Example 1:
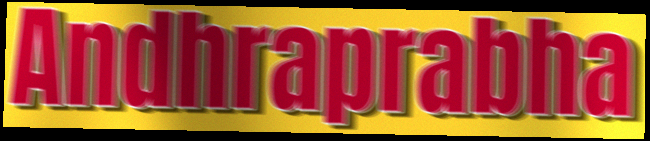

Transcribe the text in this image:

Andhraprabha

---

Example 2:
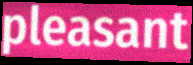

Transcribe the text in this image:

pleasant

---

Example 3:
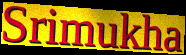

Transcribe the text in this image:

Srimukha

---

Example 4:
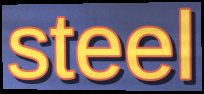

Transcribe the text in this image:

steel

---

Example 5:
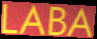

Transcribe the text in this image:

LABA